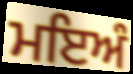
ਮਇਅੰ